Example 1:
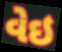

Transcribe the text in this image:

વેઇ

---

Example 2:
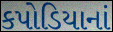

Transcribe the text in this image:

કપોડિયાનાં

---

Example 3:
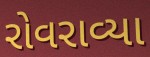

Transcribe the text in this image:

રોવરાવ્યા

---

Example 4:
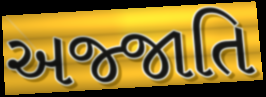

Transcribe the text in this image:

અજ્જાતિ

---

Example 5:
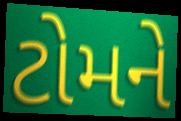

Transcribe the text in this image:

ટોમને